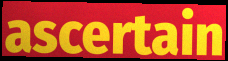
ascertain